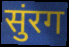
सुंरग